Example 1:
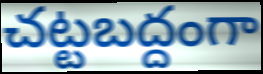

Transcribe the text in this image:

చట్టబద్దంగా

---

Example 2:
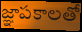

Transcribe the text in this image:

జ్ఞాపకాలతో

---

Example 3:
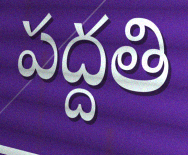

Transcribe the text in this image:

పద్దతి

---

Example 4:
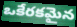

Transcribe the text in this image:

ఒకేరకమైన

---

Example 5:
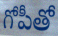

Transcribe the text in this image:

గోపీతో